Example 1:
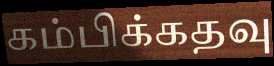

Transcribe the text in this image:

கம்பிக்கதவு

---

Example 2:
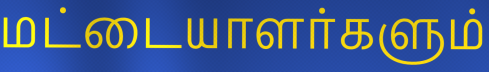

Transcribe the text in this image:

மட்டையாளர்களும்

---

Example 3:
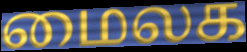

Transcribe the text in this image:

மைலக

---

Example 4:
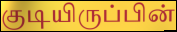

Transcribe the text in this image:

குடியிருப்பின்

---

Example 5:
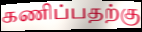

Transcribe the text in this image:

கணிப்பதற்கு